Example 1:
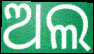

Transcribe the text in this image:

ଅଲ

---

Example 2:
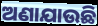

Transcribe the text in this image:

ଅଣାଯାଉଛି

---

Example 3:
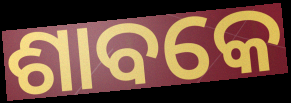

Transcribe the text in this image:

ଶାବକେ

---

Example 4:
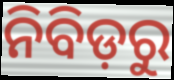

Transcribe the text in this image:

ନିବିଡ଼ରୁ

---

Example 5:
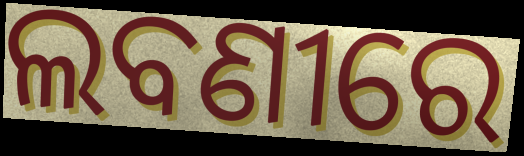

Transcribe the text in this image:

ଲବଣୀରେ